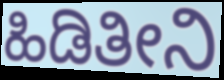
ಹಿಡಿತೀನಿ